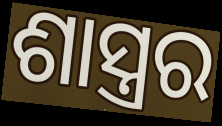
ଶାସ୍ତ୍ରର